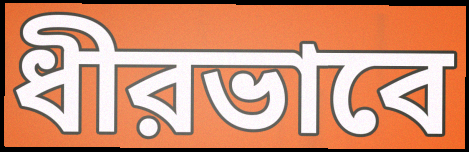
ধীরভাবে